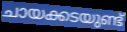
ചായക്കടയുണ്ട്